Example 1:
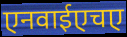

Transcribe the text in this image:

एनवाईएचए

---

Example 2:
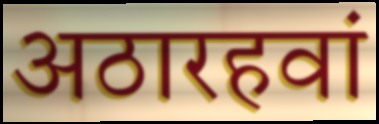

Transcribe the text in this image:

अठारहवां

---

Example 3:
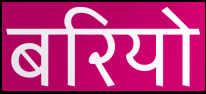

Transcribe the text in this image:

बरियो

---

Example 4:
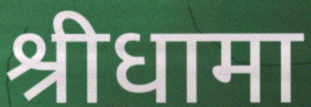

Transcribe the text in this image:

श्रीधामा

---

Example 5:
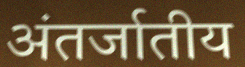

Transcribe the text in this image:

अंतर्जातीय